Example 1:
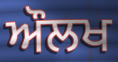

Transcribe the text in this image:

ਔਲਖ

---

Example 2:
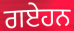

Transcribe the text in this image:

ਗਏਹਨ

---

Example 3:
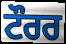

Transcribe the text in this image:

ਟੌਰਰ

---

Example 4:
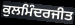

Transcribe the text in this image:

ਕੁਲਮਿੰਦਰਜੀਤ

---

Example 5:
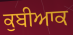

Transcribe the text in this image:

ਕੁਬੀਆਕ